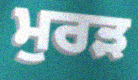
ਮੁਰੜ